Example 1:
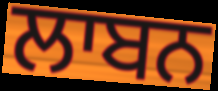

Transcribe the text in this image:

ਲਾਬਨ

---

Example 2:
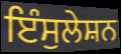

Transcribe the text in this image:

ਇੰਸੁਲੇਸ਼ਨ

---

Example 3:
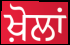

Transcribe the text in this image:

ਖ਼ੋਲਾਂ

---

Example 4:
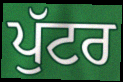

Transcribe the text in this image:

ਪੁੱਟਰ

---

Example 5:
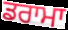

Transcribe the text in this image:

ਡਰਾਮਾ